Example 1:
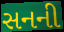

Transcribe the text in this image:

સનની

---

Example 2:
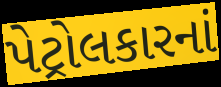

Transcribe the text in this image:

પેટ્રોલકારનાં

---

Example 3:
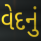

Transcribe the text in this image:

વેદનું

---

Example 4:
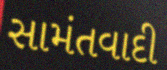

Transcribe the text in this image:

સામંતવાદી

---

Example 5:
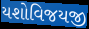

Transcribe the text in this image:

યશોવિજયજી